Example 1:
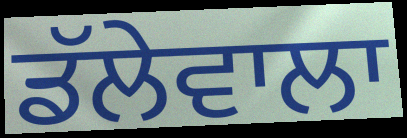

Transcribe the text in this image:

ਡੱਲੇਵਾਲਾ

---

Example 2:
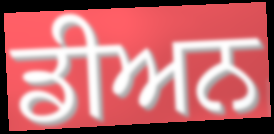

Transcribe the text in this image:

ਡੀਅਨ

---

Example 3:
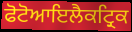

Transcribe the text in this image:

ਫੋਟੋਆਇਲੈਕਟ੍ਰਿਕ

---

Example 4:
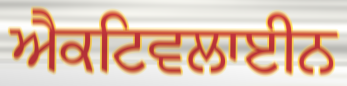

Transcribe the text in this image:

ਐਕਟਿਵਲਾਈਨ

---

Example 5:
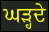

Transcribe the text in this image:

ਘੜ੍ਹਦੇ